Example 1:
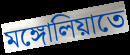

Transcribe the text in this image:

মঙ্গোলিয়াতে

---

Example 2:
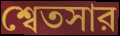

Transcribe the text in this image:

শ্বেতসার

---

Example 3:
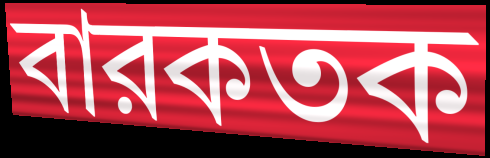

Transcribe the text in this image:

বারকতক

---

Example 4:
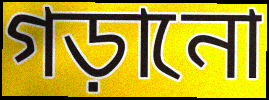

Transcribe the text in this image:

গড়ানো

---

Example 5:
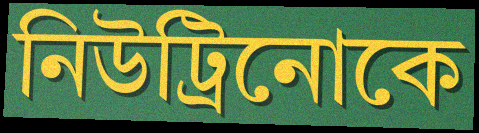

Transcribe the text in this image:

নিউট্রিনোকে